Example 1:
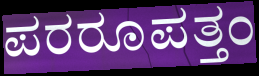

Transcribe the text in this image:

ಪರರೂಪತ್ತಂ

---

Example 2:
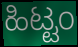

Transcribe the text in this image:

ಹಿಟ್ಟಂ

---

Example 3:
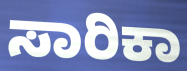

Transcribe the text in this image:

ಸಾರಿಕಾ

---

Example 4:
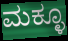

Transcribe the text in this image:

ಮಕ್ಳೂ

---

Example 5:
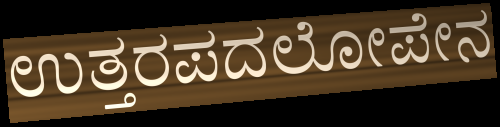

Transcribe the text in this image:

ಉತ್ತರಪದಲೋಪೇನ